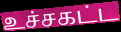
உச்சகட்ட